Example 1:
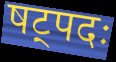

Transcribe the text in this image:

षट्पदः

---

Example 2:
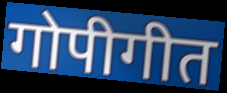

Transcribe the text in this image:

गोपीगीत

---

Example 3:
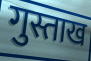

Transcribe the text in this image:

गुस्ताख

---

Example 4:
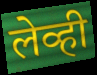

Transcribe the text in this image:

लेव्ही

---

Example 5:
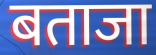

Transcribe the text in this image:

बताजा